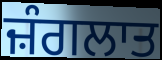
ਜ਼ੰਗਲਾਤ